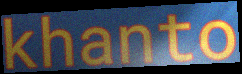
khanto